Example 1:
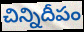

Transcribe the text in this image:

చిన్నిదీపం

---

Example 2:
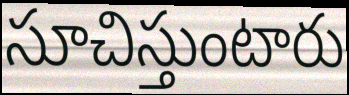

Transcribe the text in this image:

సూచిస్తుంటారు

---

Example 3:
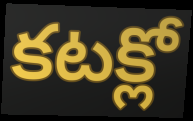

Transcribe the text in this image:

కటక్లో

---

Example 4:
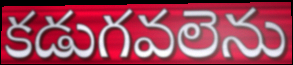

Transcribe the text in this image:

కడుగవలెను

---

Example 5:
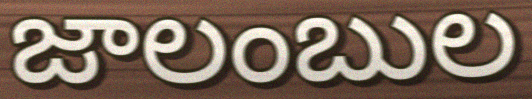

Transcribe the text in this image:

జాలంబుల